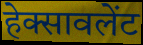
हेक्सावलेंट